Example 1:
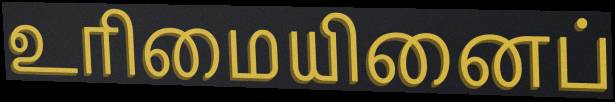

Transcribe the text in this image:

உரிமையினைப்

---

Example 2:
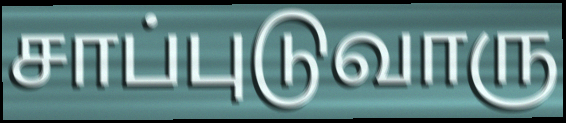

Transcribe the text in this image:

சாப்புடுவாரு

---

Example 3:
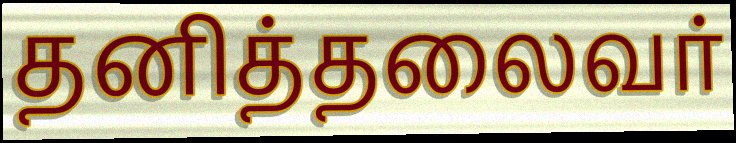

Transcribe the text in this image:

தனித்தலைவர்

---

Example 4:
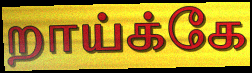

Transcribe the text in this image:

றாய்க்கே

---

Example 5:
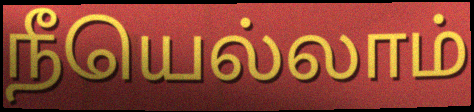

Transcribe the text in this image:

நீயெல்லாம்